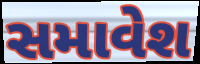
સમાવેશ